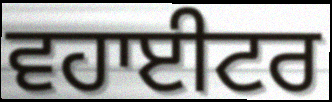
ਵਹਾਈਟਰ